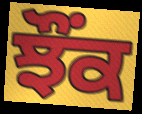
ਝੌਂਕ